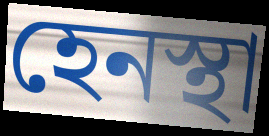
হেনস্থা